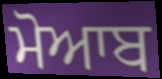
ਮੋਆਬ